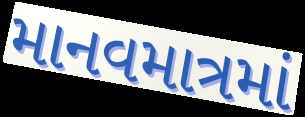
માનવમાત્રમાં